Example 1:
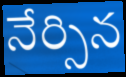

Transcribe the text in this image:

నేర్సిన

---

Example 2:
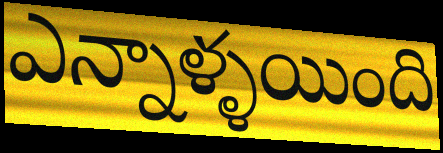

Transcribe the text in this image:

ఎన్నాళ్ళయింది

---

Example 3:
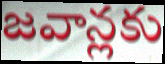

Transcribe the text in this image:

జవాన్లకు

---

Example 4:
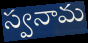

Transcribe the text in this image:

స్వనామ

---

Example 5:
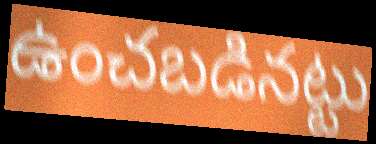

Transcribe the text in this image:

ఉంచబడినట్టు